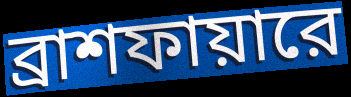
ব্রাশফায়ারে